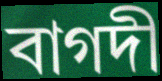
বাগদী